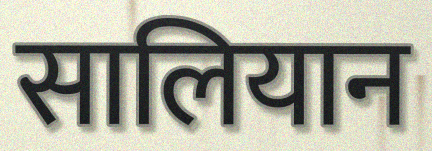
सालियान